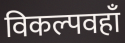
विकल्पवहाँ